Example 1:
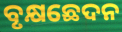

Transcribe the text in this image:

ବୃକ୍ଷଛେଦନ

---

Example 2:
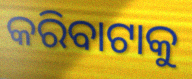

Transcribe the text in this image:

କରିବାଟାକୁ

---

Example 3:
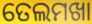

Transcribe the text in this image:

ତେଲମଖା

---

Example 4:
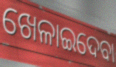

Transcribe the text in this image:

ଖେଳାଇଦେବା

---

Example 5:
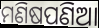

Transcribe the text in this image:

ମଣିଷପଣିଆ